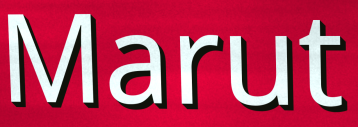
Marut